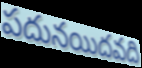
పదునయిదవది